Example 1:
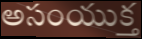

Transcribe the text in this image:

అసంయుక్త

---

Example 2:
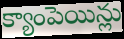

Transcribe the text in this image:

క్యాంపెయిన్లు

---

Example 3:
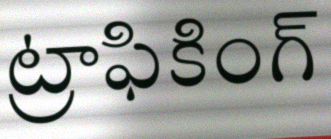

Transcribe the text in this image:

ట్రాఫికింగ్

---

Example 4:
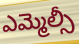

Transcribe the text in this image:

ఎమ్మెల్సీ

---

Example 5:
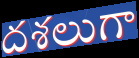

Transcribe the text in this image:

దశలుగా